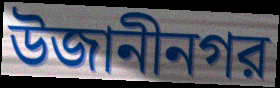
উজানীনগর